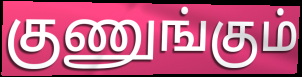
குணுங்கும்